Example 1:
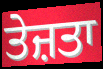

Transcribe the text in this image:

ਤੇਜ਼ਤਾ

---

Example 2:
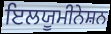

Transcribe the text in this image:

ਇਲਯੂਮੀਨੇਸ਼ਨ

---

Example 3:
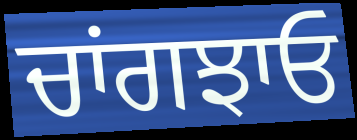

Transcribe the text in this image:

ਚਾਂਗਝਾਓ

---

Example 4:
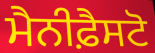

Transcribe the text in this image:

ਮੈਨੀਫ਼ੈਸਟੋ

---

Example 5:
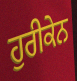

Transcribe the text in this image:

ਹੁਰੀਕੇਨ